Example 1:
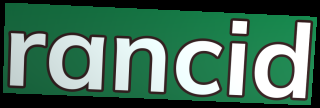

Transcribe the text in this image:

rancid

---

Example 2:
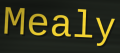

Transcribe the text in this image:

Mealy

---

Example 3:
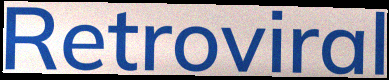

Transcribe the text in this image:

Retroviral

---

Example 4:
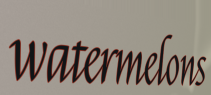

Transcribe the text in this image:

watermelons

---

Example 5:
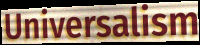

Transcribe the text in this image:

Universalism